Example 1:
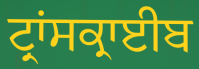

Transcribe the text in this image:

ਟ੍ਰਾਂਸਕ੍ਰਾਈਬ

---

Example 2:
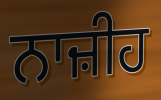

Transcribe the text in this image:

ਨਾਜ਼ੀਹ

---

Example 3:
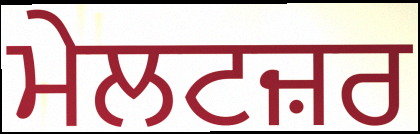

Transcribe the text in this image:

ਮੇਲਟਜ਼ਰ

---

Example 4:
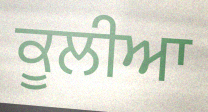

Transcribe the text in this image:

ਕੂਲੀਆ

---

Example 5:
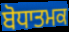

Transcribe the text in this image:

ਬੋਧਾਤਮਕ